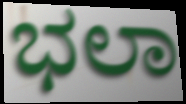
ಭಲಾ